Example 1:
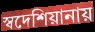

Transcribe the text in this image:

স্বদেশিয়ানায়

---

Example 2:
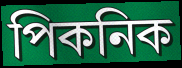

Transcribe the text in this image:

পিকনিক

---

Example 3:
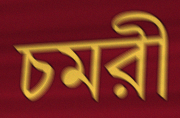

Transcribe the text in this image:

চমরী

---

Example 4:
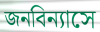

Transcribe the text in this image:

জনবিন্যাসে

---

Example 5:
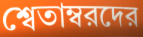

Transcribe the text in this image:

শ্বেতাম্বরদের